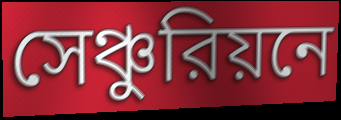
সেঞ্চুরিয়নে